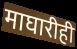
माघारीही